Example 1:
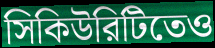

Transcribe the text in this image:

সিকিউরিটিতেও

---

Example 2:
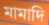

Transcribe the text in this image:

মামাদি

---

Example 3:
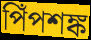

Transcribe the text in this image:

পিঁপশঙ্ক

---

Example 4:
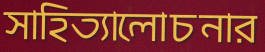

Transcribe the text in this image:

সাহিত্যালোচনার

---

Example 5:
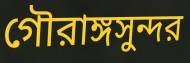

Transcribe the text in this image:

গৌরাঙ্গসুন্দর